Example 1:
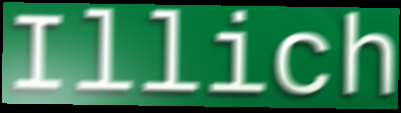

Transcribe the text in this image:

Illich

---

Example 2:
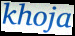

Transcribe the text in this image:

khoja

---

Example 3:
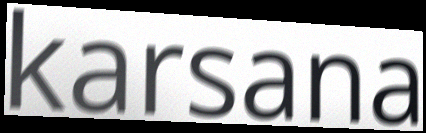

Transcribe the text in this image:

karsana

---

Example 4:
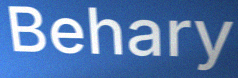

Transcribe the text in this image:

Behary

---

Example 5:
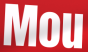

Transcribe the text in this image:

Mou